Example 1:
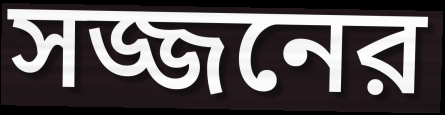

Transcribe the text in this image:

সজ্জনের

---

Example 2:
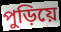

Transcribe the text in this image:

পুড়িয়ে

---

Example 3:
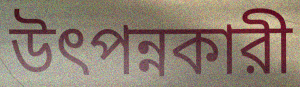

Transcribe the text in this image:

উৎপন্নকারী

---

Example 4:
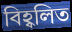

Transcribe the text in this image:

বিহ্বলিত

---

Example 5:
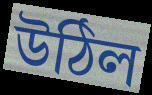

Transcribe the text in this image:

উঠিল